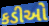
કડીઓ